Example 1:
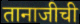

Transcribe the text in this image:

तानाजीची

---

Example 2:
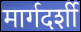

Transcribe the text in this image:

मार्गदर्शी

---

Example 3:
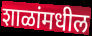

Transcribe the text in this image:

शाळांमधील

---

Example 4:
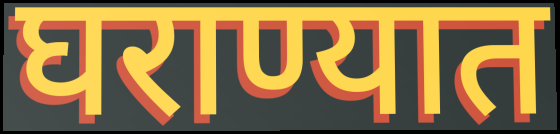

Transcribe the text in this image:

घराण्यात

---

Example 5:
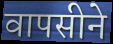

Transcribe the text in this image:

वापसीने